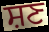
ਸ਼ਣ